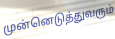
முன்னெடுத்துவரும்